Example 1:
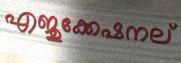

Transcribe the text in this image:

എജുക്കേഷനല്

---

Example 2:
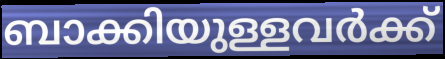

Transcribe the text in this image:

ബാക്കിയുള്ളവർക്ക്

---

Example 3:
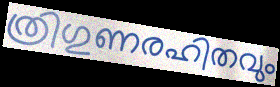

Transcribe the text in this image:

ത്രിഗുണരഹിതവും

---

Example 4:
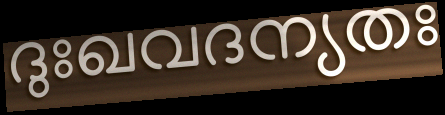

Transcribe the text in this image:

ദുഃഖവദന്യതഃ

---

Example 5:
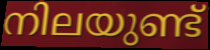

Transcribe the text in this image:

നിലയുണ്ട്